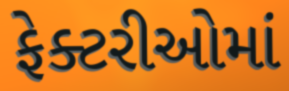
ફેક્ટરીઓમાં